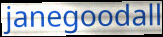
janegoodall